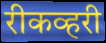
रीकव्हरी